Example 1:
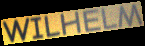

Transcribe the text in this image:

WILHELM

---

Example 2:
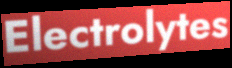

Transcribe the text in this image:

Electrolytes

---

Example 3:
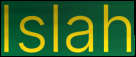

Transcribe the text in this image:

Islah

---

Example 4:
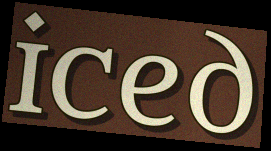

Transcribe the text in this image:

iced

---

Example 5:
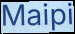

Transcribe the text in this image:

Maipi